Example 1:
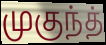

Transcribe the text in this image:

முகுந்த்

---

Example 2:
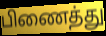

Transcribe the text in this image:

பிணைத்து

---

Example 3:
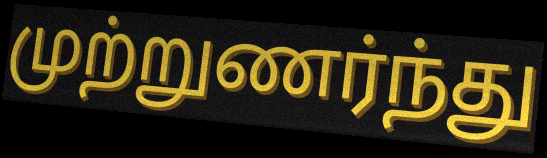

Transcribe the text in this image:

முற்றுணர்ந்து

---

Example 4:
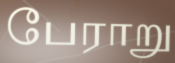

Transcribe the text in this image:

பேராறு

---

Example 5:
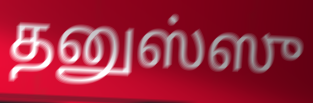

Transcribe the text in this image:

தனுஸ்ஸு